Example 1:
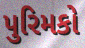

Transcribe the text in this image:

પુરિમકો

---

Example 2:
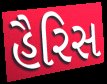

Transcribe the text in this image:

હૈરિસ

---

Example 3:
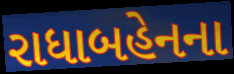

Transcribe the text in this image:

રાધાબહેનના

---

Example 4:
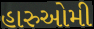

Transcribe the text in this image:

હારુઓમી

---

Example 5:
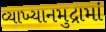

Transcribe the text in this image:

વ્યાખ્યાનમુદ્રામાં